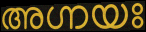
അഗ്നയഃ